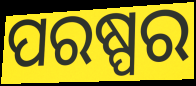
ପରଷ୍ପର